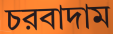
চরবাদাম